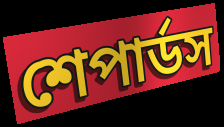
শেপার্ডস